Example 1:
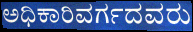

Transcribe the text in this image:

ಅಧಿಕಾರಿವರ್ಗದವರು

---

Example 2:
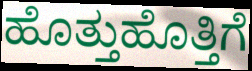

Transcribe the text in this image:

ಹೊತ್ತುಹೊತ್ತಿಗೆ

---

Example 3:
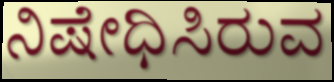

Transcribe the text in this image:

ನಿಷೇಧಿಸಿರುವ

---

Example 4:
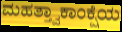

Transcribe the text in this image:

ಮಹತ್ತ್ವಾಕಾಂಕ್ಷೆಯ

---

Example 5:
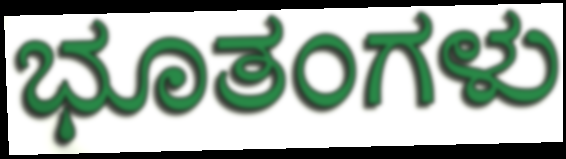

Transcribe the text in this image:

ಭೂತಂಗಳು